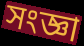
সংজ্ঞা